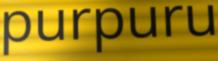
purpuru